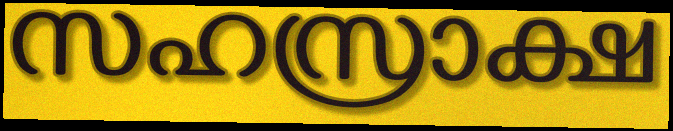
സഹസ്രാക്ഷ